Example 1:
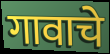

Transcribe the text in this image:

गावाचे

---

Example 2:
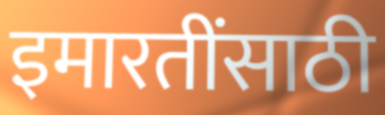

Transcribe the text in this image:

इमारतींसाठी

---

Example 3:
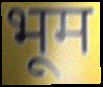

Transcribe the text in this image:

भूम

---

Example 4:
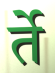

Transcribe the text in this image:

र्ते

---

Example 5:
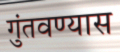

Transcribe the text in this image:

गुंतवण्यास